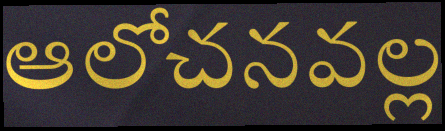
ఆలోచనవల్ల